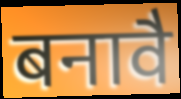
बनावै